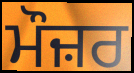
ਮੌਜ਼ਰ